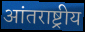
आंतराष्ट्रीय